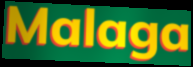
Malaga